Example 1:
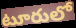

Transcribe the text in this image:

టూరులో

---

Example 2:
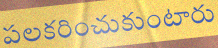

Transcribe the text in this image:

పలకరించుకుంటారు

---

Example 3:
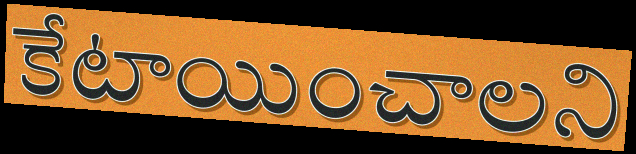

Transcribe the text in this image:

కేటాయించాలని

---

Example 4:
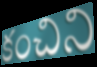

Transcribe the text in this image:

కంచిని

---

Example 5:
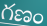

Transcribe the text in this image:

గణం